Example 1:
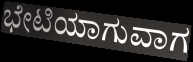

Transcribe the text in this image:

ಭೇಟಿಯಾಗುವಾಗ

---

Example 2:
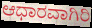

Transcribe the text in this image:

ಆಧಾರವಾಗಿರಿ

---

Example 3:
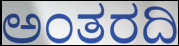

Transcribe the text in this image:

ಅಂತರದಿ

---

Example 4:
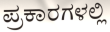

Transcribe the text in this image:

ಪ್ರಕಾರಗಳಲ್ಲಿ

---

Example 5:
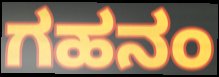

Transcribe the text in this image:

ಗಹನಂ